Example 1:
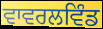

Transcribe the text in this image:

ਵਾਵਰਲਵਿੰਡ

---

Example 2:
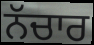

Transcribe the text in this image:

ਨੱਚਾਰ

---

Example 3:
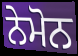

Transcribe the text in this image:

ਨੇਮੋਨ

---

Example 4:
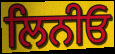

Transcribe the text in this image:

ਲਿਨੀਓ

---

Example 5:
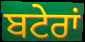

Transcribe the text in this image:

ਬਟੇਰਾਂ